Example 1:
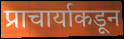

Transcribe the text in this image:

प्राचार्याकडून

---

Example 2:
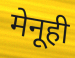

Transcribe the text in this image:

मेनूही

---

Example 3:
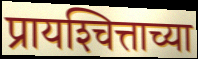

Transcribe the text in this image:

प्रायश्‍चित्ताच्या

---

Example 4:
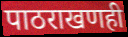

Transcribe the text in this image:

पाठराखणही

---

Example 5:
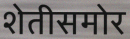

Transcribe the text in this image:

शेतीसमोर